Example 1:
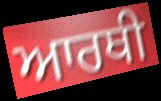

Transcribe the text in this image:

ਆਰਥੀ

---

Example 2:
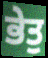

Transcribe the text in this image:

ਭੇਤੁ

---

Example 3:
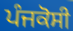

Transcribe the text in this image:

ਪੰਜਕੋਸੀ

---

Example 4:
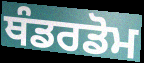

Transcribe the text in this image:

ਥੰਡਰਡੋਮ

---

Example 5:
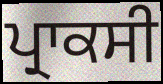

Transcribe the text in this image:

ਪ੍ਰਾਕਸੀ